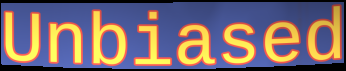
Unbiased